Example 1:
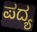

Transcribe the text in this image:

ಪದ್ಯ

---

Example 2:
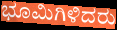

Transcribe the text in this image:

ಭೂಮಿಗಿಳಿದರು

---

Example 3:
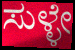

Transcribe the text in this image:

ಸುಳ್ಳೇ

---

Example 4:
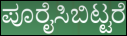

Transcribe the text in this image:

ಪೂರೈಸಿಬಿಟ್ಟರೆ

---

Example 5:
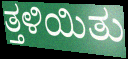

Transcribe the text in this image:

ತ್ತಳಿಯಿತು